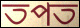
তপত